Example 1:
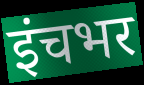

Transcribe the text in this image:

इंचभर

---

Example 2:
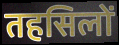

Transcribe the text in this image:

तहसिलों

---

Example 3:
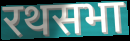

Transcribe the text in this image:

रथसभा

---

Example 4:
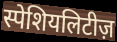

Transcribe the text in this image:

स्पेशियलिटीज़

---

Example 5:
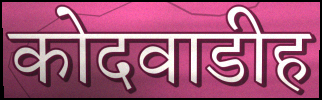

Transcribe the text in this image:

कोदवाडीह